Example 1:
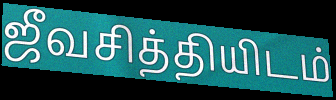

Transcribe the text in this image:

ஜீவசித்தியிடம்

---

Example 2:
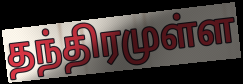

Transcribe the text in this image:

தந்திரமுள்ள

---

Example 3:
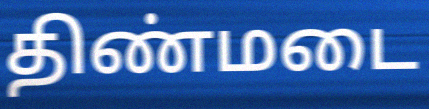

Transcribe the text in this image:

திண்மடை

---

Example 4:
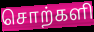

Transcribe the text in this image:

சொற்களி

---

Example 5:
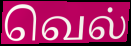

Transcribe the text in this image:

வெல்